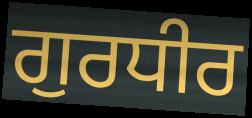
ਗੁਰਧੀਰ